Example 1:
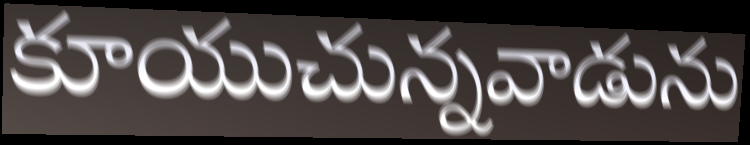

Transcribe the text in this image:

కూయుచున్నవాడును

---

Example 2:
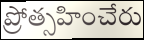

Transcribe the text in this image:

ప్రోత్సహించేరు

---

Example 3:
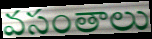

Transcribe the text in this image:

వసంతాలు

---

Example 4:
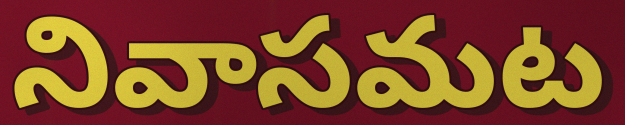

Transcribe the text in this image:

నివాసమట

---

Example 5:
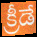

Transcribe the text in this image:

క్రీడే